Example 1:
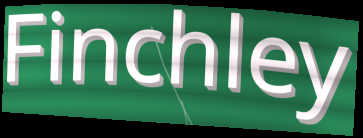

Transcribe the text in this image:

Finchley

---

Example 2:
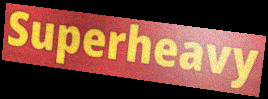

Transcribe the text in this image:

Superheavy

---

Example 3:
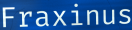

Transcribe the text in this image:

Fraxinus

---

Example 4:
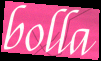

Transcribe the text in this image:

bolla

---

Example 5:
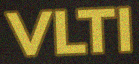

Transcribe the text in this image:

VLTI